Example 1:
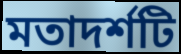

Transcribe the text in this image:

মতাদর্শটি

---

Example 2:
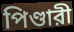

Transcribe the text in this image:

পিণ্ডারী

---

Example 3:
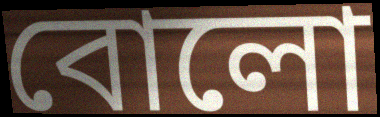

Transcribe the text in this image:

বোলো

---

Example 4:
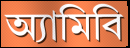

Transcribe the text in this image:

অ্যামিবি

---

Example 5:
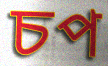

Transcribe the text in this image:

চপ